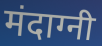
मंदाग्नी